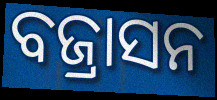
ବଜ୍ରାସନ